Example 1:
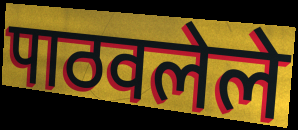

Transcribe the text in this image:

पाठवलेले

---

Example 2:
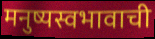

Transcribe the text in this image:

मनुष्यस्वभावाची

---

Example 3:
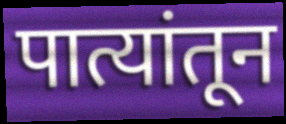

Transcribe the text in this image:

पात्यांतून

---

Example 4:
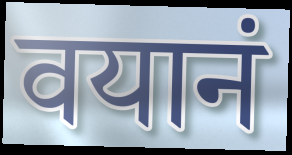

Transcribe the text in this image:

वयानं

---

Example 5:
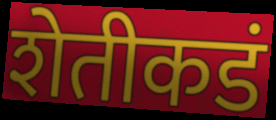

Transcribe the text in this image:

शेतीकडं